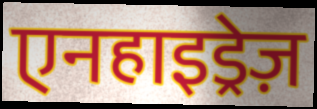
एनहाइड्रेज़